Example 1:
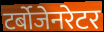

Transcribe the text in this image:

टर्बोजेनरेटर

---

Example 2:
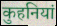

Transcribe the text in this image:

कुहनियां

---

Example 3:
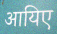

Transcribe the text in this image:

आयिए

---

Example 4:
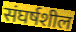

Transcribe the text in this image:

संघर्षशील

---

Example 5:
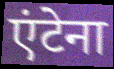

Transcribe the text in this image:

एंटेना